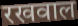
रखवाल